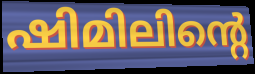
ഷിമിലിന്റെ